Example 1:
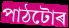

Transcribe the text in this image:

পাঠটোৰ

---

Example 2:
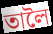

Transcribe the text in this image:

তালৈ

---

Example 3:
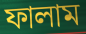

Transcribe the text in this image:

ফালাম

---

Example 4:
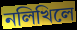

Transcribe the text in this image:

নলিখিলে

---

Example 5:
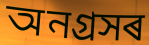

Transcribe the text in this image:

অনগ্ৰসৰ